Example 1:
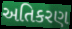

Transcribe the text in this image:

અતિકરણ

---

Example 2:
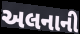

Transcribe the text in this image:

અલનાની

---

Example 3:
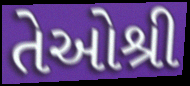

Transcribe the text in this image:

તેઓશ્રી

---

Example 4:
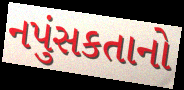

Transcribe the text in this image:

નપુંસકતાનો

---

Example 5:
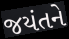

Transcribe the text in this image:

જયંતને